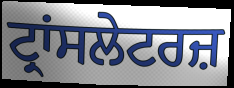
ਟ੍ਰਾਂਸਲੇਟਰਜ਼